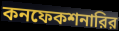
কনফেকশনারির